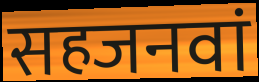
सहजनवां